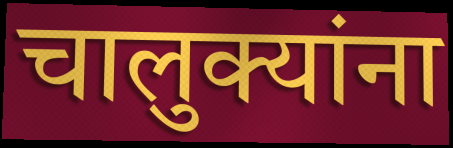
चालुक्यांना